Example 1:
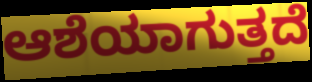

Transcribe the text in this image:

ಆಶೆಯಾಗುತ್ತದೆ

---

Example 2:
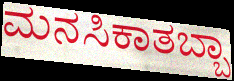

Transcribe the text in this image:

ಮನಸಿಕಾತಬ್ಬಾ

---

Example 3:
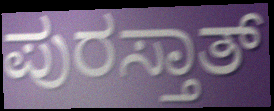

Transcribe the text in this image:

ಪುರಸ್ತಾತ್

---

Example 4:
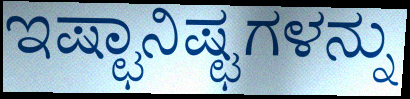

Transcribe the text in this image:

ಇಷ್ಟಾನಿಷ್ಟಗಳನ್ನು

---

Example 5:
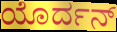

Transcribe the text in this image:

ಯೊರ್ದನ್